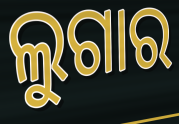
ଲୁଗାର